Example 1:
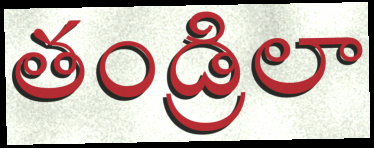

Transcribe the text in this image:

తండ్రిలా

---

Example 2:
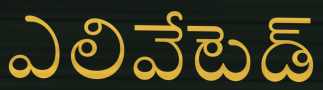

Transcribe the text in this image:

ఎలివేటెడ్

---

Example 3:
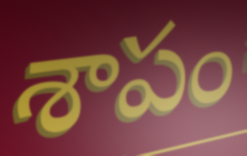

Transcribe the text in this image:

శాపం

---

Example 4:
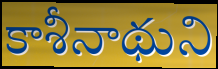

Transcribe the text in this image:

కాశీనాథుని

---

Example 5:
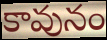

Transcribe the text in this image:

కావునం